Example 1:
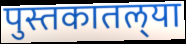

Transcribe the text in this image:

पुस्तकातल्या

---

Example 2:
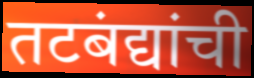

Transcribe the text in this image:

तटबंद्यांची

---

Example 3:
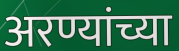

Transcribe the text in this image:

अरण्यांच्या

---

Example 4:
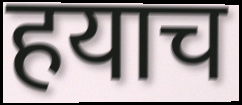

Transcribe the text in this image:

हयाच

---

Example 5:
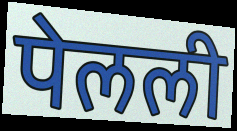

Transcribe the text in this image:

पेलली